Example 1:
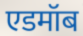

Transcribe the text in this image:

एडमॉब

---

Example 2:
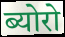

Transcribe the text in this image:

ब्योरो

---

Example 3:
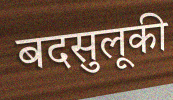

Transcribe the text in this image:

बदसुलूकी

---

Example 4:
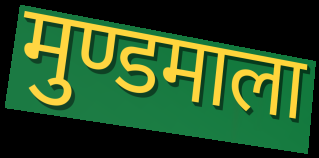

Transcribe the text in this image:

मुण्डमाला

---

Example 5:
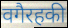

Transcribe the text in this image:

वगैरहकी